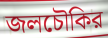
জলচৌকির